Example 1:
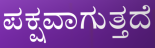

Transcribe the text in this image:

ಪಕ್ಷವಾಗುತ್ತದೆ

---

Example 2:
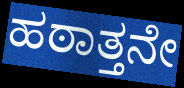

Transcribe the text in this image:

ಹಠಾತ್ತನೇ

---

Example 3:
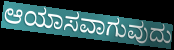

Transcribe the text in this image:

ಆಯಾಸವಾಗುವುದು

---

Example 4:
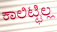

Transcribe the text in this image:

ಕಾಲಿಟ್ಟಿಲ್ಲ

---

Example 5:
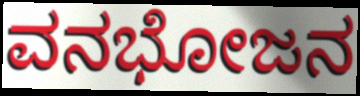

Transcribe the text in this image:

ವನಭೋಜನ